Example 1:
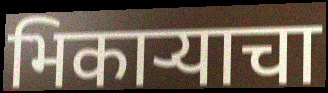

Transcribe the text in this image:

भिकाऱ्याचा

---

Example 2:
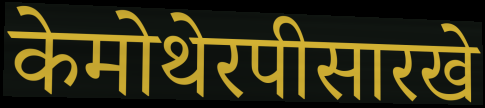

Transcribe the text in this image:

केमोथेरपीसारखे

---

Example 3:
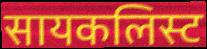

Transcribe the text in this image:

सायकलिस्ट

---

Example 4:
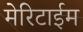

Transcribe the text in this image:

मेरिटाईम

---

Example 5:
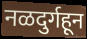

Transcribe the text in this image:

नळदुर्गहून